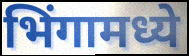
भिंगामध्ये